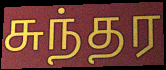
சுந்தர